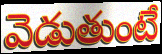
వెడుతుంటే